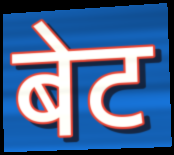
बेट